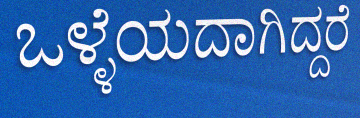
ಒಳ್ಳೆಯದಾಗಿದ್ದರೆ